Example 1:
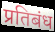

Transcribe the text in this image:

प्रतिबंध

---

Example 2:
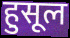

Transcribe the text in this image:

हुसूल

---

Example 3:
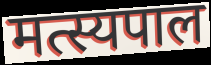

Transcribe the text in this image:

मत्स्यपाल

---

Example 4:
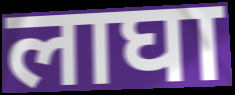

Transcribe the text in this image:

लाघा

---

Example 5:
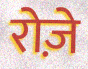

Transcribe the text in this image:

रोज़े